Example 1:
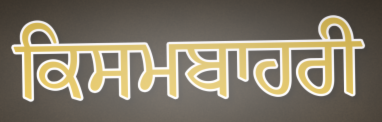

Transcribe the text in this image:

ਕਿਸਮਬਾਹਰੀ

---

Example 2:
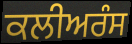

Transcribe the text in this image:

ਕਲੀਅਰੰਸ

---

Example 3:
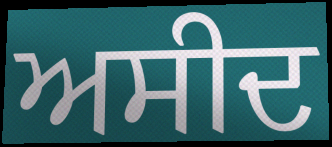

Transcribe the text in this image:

ਅਸੀਦ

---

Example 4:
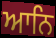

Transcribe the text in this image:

ਆਨਿ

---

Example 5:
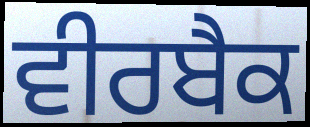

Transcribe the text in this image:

ਵੀਰਬੈਕ